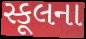
સ્કૂલના